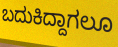
ಬದುಕಿದ್ದಾಗಲೂ